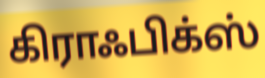
கிராஃபிக்ஸ்